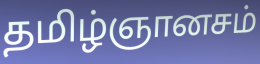
தமிழ்ஞானசம்